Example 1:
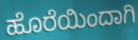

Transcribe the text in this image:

ಹೊರೆಯಿಂದಾಗಿ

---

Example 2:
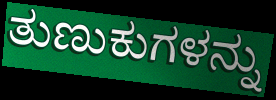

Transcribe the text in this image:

ತುಣುಕುಗಳನ್ನು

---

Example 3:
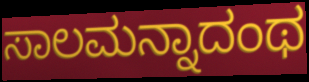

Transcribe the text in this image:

ಸಾಲಮನ್ನಾದಂಥ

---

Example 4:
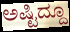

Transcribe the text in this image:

ಅಷ್ಟಿದ್ದೂ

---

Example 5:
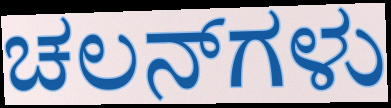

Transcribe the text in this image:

ಚಲನ್‌ಗಳು